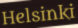
Helsinki